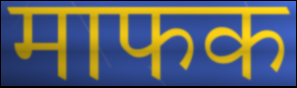
माफक